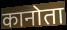
कानोता